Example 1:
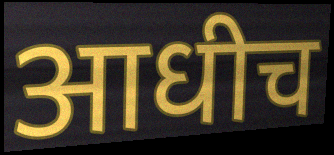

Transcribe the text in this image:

आधीच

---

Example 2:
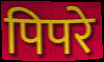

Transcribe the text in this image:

पिपरे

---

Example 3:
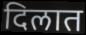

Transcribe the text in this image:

दिलात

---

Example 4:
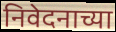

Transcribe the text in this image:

निवेदनाच्या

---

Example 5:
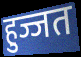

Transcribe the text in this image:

हुज्जत